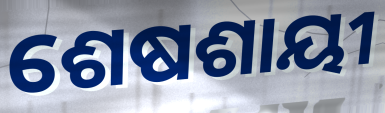
ଶେଷଶାୟୀ